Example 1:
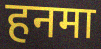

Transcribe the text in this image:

हनमा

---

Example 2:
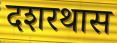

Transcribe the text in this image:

दशरथास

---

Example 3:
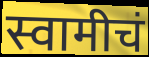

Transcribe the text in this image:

स्वामीचं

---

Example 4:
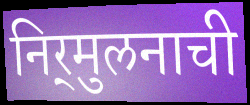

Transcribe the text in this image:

निर्मुलनाची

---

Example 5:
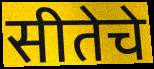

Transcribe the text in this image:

सीतेचे